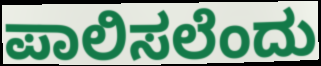
ಪಾಲಿಸಲೆಂದು